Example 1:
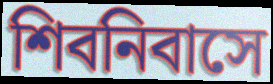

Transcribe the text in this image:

শিবনিবাসে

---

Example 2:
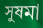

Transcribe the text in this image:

সুষমা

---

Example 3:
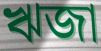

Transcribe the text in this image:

ঋজা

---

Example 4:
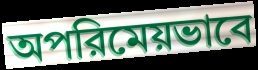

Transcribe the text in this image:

অপরিমেয়ভাবে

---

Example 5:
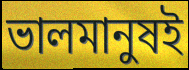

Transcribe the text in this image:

ভালমানুষই